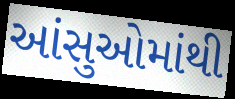
આંસુઓમાંથી